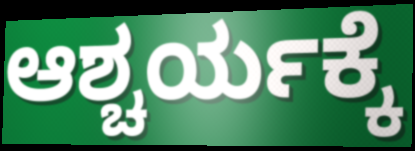
ಆಶ್ಚರ್ಯಕ್ಕೆ